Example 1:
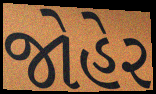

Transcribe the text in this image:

જોહેર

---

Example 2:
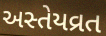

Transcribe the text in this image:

અસ્તેયવ્રત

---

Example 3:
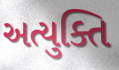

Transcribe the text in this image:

અત્યુક્તિ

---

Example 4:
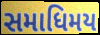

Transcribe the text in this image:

સમાધિમય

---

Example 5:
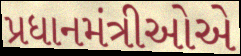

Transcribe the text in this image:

પ્રધાનમંત્રીઓએ